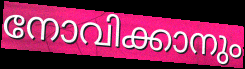
നോവിക്കാനും